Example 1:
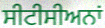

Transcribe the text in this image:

ਸੀਟੀਸੀਅਨਾਂ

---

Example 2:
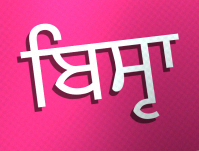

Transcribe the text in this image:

ਬਿਸ੍ਟਾ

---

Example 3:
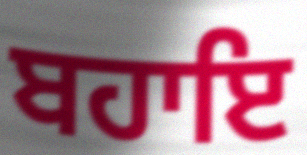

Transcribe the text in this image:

ਬਹਾਇ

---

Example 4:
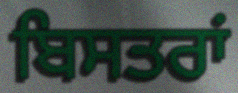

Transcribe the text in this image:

ਬਿਸਤਰਾਂ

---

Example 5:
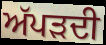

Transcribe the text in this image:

ਅੱਪੜਦੀ